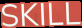
SKILL